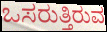
ಒಸರುತ್ತಿರುವ